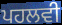
ਪਹਲਵੀ